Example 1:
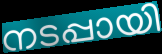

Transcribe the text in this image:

നടപ്പായി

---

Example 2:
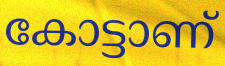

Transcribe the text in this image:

കോട്ടാണ്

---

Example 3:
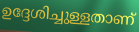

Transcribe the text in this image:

ഉദ്ദേശിച്ചുള്ളതാണ്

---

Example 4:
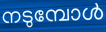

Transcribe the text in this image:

നടുമ്പോൾ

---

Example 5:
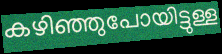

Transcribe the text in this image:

കഴിഞ്ഞുപോയിട്ടുള്ള